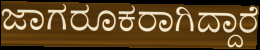
ಜಾಗರೂಕರಾಗಿದ್ದಾರೆ